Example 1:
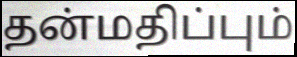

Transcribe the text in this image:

தன்மதிப்பும்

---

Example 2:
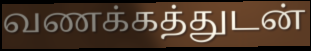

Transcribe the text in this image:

வணக்கத்துடன்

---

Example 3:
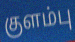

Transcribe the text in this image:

குளம்பு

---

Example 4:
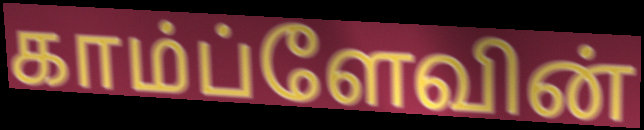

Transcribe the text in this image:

காம்ப்ளேவின்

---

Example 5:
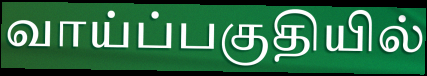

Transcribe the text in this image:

வாய்ப்பகுதியில்